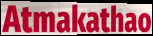
Atmakathao